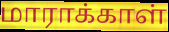
மாராக்காள்